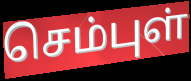
செம்புள்